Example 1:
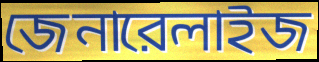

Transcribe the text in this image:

জেনারেলাইজ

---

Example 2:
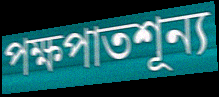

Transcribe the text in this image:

পক্ষপাতশূন্য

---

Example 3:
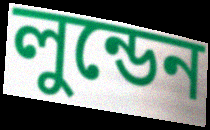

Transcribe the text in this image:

লুন্ডেন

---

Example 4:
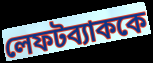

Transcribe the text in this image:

লেফটব্যাককে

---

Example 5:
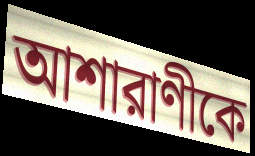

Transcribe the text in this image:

আশারাণীকে